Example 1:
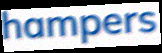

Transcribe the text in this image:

hampers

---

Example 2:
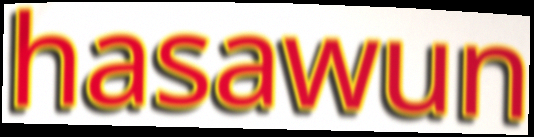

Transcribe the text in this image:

hasawun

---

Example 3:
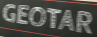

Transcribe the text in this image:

GEOTAR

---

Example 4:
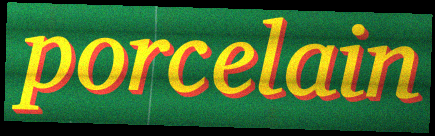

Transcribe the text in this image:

porcelain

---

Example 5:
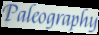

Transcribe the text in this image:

Paleography